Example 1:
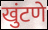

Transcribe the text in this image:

खुंटणे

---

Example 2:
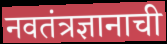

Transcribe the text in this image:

नवतंत्रज्ञानाची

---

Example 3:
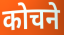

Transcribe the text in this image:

कोचने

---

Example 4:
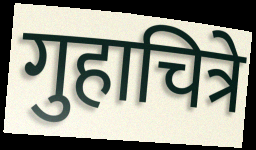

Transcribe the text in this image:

गुहाचित्रे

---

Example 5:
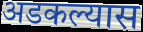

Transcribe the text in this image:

अडकल्यास